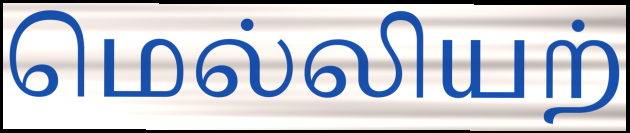
மெல்லியற்